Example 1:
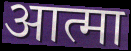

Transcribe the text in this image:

आत्मा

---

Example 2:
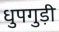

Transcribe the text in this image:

धुपगुड़ी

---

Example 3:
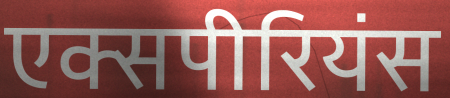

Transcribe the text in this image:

एक्सपीरियंस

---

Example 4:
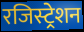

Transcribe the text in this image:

रजिस्‍ट्रेशन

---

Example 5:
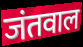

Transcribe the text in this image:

जंतवाल